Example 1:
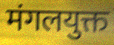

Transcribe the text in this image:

मंगलयुक्त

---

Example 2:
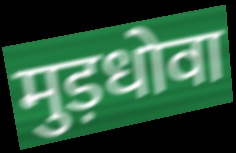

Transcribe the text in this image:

मुड़धोवा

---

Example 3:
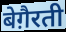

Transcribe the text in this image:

बेग़ैरती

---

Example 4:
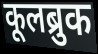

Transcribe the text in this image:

कूलब्रुक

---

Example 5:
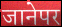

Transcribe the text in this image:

जानेपर